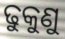
ଢୁକୁଣୁ